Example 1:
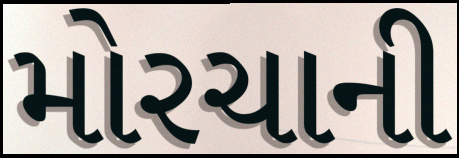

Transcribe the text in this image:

મોરચાની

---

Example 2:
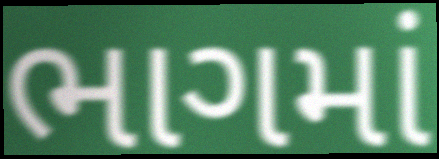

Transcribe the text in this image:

ભાગમાં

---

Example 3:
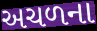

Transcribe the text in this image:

અચળના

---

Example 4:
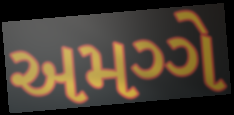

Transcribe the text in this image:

અમગ્ગે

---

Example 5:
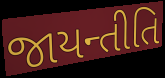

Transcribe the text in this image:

જાયન્તીતિ